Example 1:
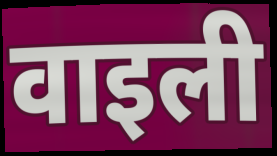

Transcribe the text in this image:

वाइली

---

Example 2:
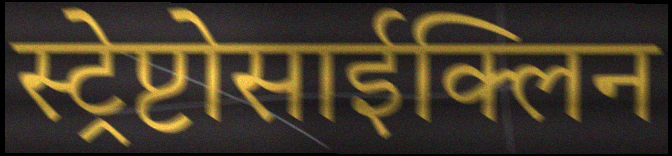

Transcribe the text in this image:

स्ट्रेप्टोसाईक्लिन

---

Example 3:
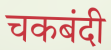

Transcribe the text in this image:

चकबंदी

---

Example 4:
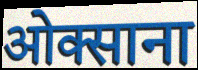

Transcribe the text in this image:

ओक्साना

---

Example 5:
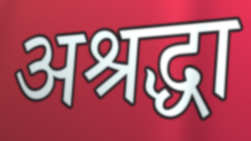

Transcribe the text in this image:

अश्रद्धा